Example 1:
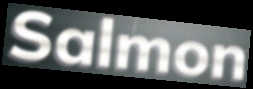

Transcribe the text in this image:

Salmon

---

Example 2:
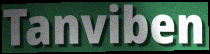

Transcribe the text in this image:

Tanviben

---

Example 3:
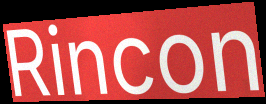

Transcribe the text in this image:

Rincon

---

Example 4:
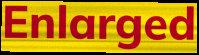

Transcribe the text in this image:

Enlarged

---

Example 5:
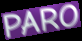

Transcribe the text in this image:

PARO